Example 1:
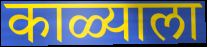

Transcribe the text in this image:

काळ्याला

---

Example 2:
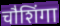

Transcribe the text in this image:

चौशिंगा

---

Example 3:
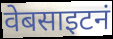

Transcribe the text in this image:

वेबसाइटनं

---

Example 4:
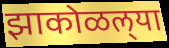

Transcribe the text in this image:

झाकोळल्या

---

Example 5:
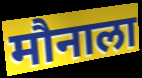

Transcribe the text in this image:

मौनाला